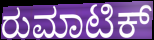
ರುಮಾಟಿಕ್